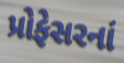
પ્રોફેસરનાં